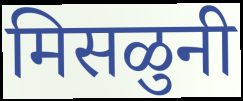
मिसळुनी